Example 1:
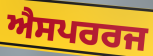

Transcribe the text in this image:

ਐਸਪਰਰਜ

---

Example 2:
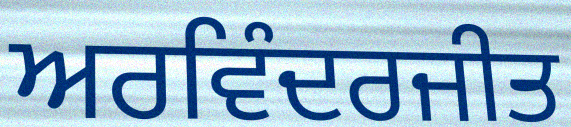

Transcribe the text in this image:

ਅਰਵਿੰਦਰਜੀਤ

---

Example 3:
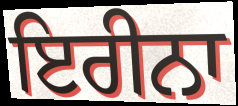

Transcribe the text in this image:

ਇਰੀਨਾ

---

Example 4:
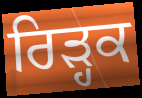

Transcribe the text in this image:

ਰਿੜ੍ਹਕ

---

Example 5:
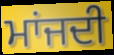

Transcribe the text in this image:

ਮਾਂਜਦੀ